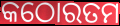
କଠୋରତମ